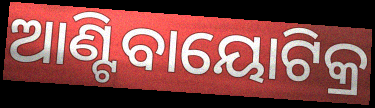
ଆଣ୍ଟିବାୟୋଟିକ୍ର